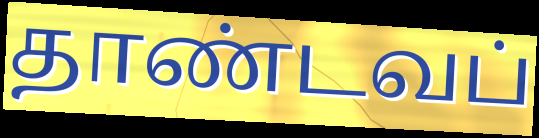
தாண்டவப்